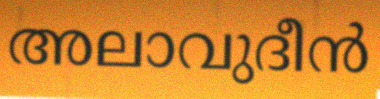
അലാവുദീൻ